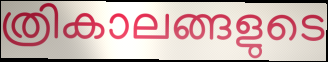
ത്രികാലങ്ങളുടെ